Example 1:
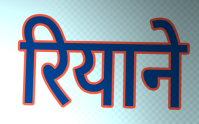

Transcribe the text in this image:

रियाने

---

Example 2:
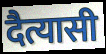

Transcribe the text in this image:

दैत्यासी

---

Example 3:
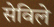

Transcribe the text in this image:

सेविले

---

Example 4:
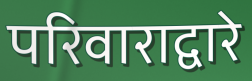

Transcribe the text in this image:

परिवाराद्वारे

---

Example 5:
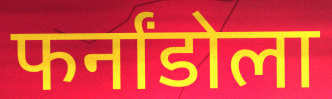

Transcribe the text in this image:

फर्नांडोला